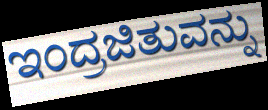
ಇಂದ್ರಜಿತುವನ್ನು